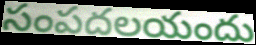
సంపదలయందు